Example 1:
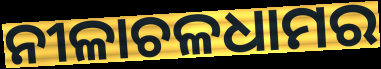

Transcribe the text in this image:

ନୀଳାଚଳଧାମର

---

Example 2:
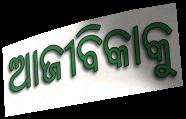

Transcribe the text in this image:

ଆଜୀବିକାକୁ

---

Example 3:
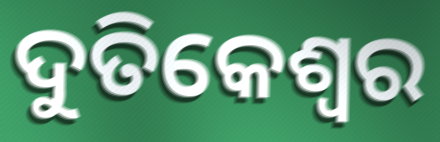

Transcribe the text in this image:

ଦୁତିକେଶ୍ୱର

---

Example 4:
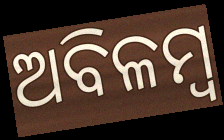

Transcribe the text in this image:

ଅବିଳମ୍ବ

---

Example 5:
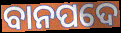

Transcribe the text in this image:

ବାନପଦେ